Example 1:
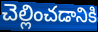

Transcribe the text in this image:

చెల్లించడానికి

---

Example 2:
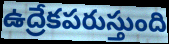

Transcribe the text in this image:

ఉద్రేకపరుస్తుంది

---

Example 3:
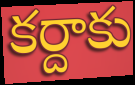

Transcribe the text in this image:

కర్దాకు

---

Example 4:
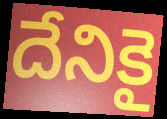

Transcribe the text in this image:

దేనికై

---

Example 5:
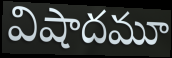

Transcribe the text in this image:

విషాదమూ